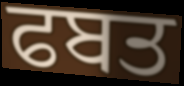
ਫਬਤ